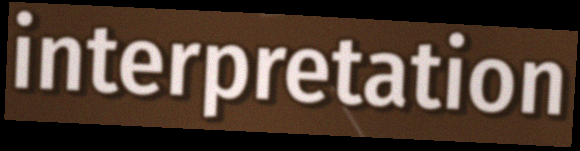
interpretation